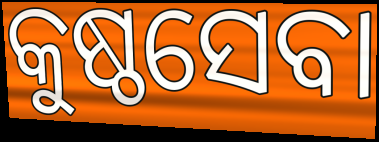
କୁଷ୍ଠସେବା